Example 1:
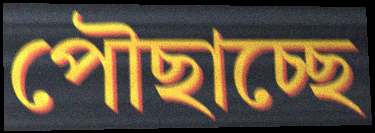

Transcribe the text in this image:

পৌছাচ্ছে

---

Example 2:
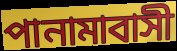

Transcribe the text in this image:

পানামাবাসী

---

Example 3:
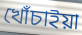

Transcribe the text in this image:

খোঁচাইয়া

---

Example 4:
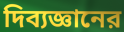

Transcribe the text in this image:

দিব্যজ্ঞানের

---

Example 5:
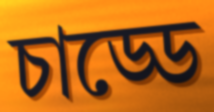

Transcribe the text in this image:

চাড্ডে